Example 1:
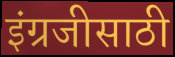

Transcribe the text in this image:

इंग्रजीसाठी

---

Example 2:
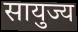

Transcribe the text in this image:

सायुज्य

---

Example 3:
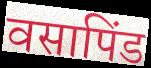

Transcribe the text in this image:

वसापिंड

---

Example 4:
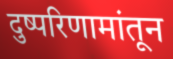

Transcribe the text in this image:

दुष्परिणामांतून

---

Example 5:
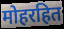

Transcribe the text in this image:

मोहरहित